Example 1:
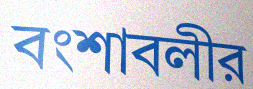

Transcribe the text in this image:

বংশাবলীর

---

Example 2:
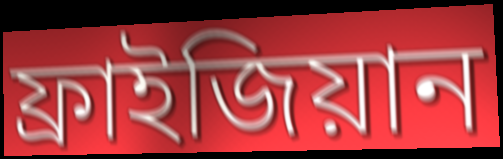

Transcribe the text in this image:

ফ্রাইজিয়ান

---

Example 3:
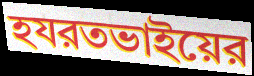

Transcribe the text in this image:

হযরতভাইয়ের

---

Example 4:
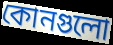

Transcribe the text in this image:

কোনগুলো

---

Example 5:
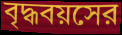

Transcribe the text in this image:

বৃদ্ধবয়সের